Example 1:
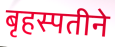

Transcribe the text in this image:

बृहस्पतीने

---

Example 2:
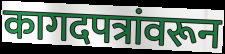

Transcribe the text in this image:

कागदपत्रांवरून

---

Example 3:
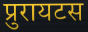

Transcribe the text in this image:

प्रुरायटस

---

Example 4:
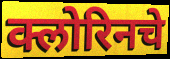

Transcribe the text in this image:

क्लोरिनचे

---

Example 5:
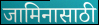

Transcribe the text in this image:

जामिनासाठी